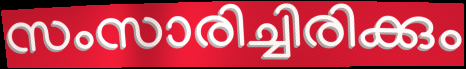
സംസാരിച്ചിരിക്കും